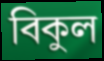
বিকুল